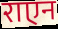
राएन